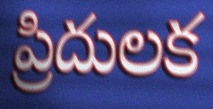
ప్రిదులక